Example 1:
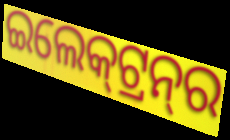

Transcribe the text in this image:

ଇଲେକ୍‍ଟ୍ରନ୍‍ର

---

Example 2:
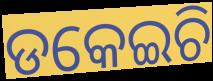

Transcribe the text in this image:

ଡକେଇଚି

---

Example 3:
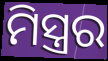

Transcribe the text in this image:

ମିସ୍ତ୍ରର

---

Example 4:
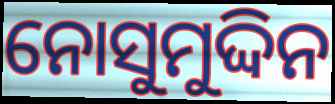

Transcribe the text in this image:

ନୋସୁମୁଦ୍ଦିନ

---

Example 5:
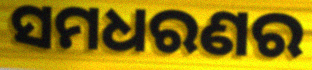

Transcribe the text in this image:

ସମଧରଣର